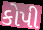
કોપી